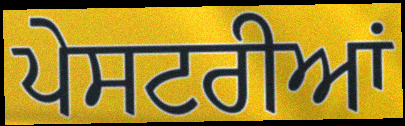
ਪੇਸਟਰੀਆਂ